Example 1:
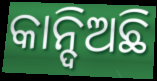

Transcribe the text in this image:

କାନ୍ଦିଅଛି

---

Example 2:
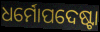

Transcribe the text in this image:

ଧର୍ମୋପଦେଷ୍ଟା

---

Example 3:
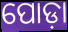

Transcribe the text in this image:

ପୋଡ଼ା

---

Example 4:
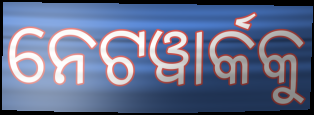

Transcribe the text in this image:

ନେଟୱାର୍କକୁ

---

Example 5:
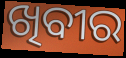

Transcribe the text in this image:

ଖିବୀର